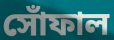
সোঁফাল